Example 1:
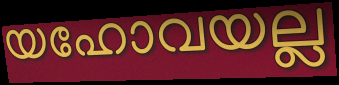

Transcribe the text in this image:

യഹോവയല്ല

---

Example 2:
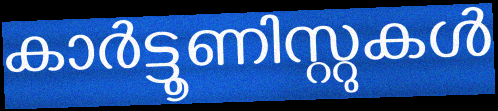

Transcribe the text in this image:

കാർട്ടൂണിസ്റ്റുകൾ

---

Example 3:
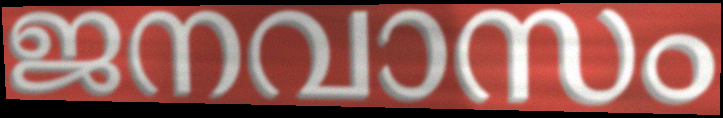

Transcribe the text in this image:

ജനവാസം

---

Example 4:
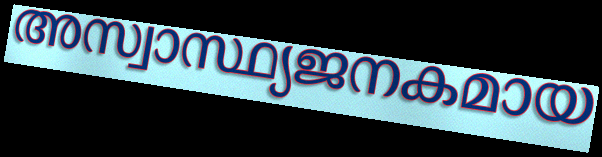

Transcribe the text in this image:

അസ്വാസ്ഥ്യജനകമായ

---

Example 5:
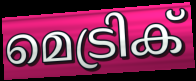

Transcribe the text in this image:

മെട്രിക്